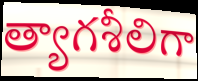
త్యాగశీలిగా